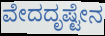
ವೇದದೃಷ್ಟೇನ